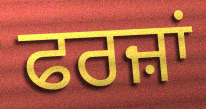
ਫਰਜ਼ਾਂ